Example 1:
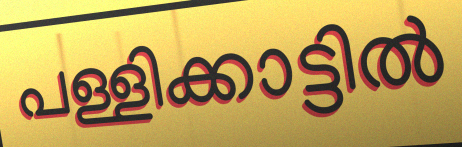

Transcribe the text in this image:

പള്ളിക്കാട്ടിൽ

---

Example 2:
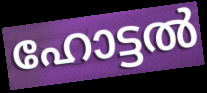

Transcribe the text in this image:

ഹോട്ടൽ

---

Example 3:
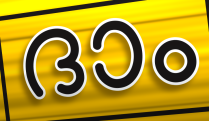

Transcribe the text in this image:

ദാം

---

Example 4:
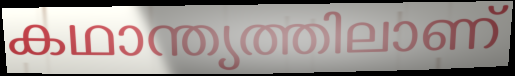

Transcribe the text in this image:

കഥാന്ത്യത്തിലാണ്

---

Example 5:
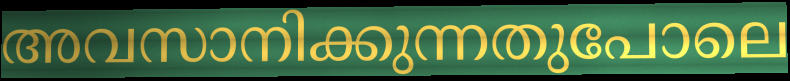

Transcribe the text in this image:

അവസാനിക്കുന്നതുപോലെ